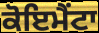
ਕੋਇਮੈਂਟਾ